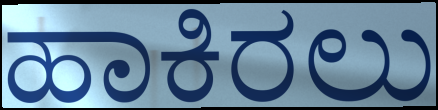
ಹಾಕಿರಲು